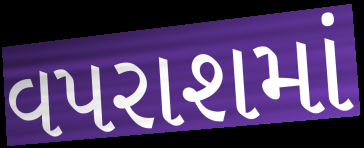
વપરાશમાં